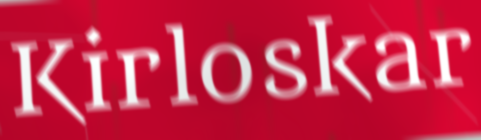
Kirloskar